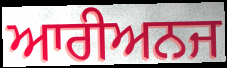
ਆਰੀਅਨਜ